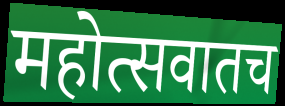
महोत्सवातच